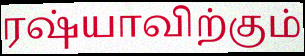
ரஷ்யாவிற்கும்